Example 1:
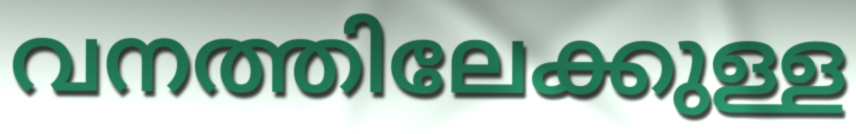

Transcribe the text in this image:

വനത്തിലേക്കുള്ള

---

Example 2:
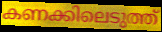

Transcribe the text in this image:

കണക്കിലെടുത്ത്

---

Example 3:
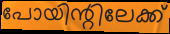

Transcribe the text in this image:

പോയിന്റിലേക്ക്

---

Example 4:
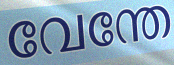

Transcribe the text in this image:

വേന്തേ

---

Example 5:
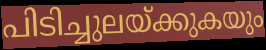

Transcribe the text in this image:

പിടിച്ചുലയ്ക്കുകയും